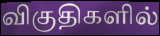
விகுதிகளில்